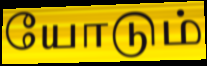
யோடும்